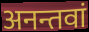
अनन्तवां